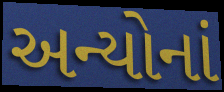
અન્યોનાં